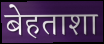
बेहताशा